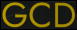
GCD